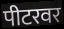
पीटरवर